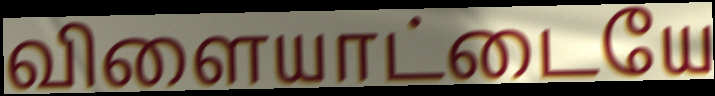
விளையாட்டையே